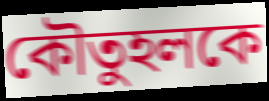
কৌতুহলকে